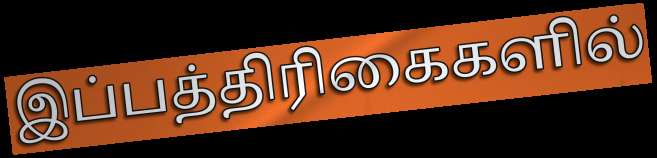
இப்பத்திரிகைகளில்